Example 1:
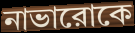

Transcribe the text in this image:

নাভারোকে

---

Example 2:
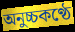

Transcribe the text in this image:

অনুচ্চকণ্ঠে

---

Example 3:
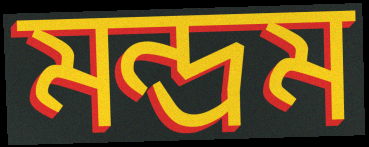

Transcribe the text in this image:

মন্দ্রম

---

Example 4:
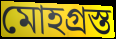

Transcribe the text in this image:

মোহগ্রস্ত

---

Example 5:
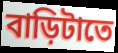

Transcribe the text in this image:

বাড়িটাতে